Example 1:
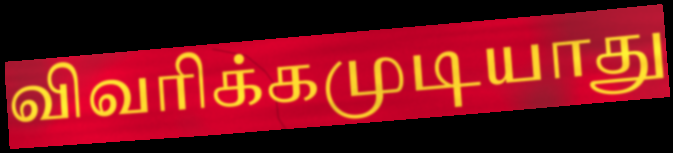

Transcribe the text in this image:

விவரிக்கமுடியாது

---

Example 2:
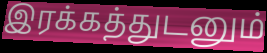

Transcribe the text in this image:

இரக்கத்துடனும்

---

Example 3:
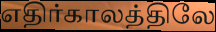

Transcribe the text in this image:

எதிர்காலத்திலே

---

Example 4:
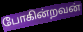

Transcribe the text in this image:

போகின்றவன்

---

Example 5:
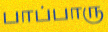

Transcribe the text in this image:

பாப்பாரு